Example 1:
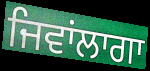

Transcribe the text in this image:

ਜਿਵਾਂਲਾਗਾ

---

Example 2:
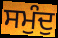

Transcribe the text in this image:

ਸਮੁੰਦੁ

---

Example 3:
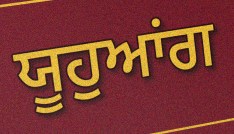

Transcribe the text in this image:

ਯੂਹੁਆਂਗ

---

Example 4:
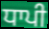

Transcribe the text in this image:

ਧਾਪੀ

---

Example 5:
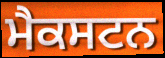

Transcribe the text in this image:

ਮੈਕਸਟਨ